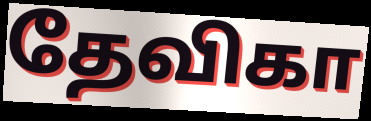
தேவிகா